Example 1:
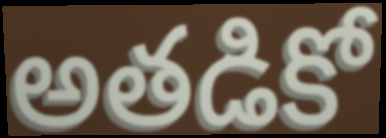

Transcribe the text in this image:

అతడికో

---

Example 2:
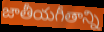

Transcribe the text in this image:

జాతీయగీతాన్ని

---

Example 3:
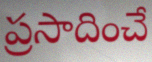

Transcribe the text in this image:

ప్రసాదించే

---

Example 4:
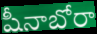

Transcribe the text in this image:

షీనాబోరా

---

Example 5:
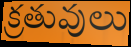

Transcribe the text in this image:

క్రతువులు